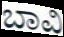
ಬಾವಿ